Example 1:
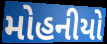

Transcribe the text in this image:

મોહનીયો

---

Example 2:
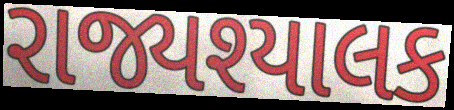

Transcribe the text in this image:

રાજ્યશ્યાલક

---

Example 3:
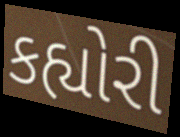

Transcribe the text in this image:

કહ્યોરી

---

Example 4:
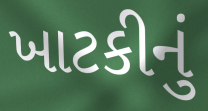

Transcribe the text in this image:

ખાટકીનું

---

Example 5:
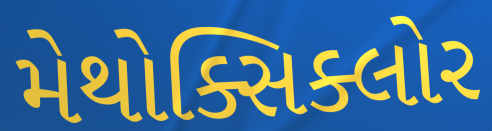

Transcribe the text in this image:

મેથોક્સિક્લોર